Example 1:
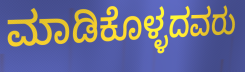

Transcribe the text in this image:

ಮಾಡಿಕೊಳ್ಳದವರು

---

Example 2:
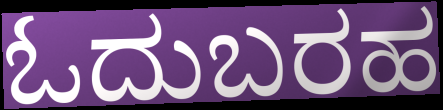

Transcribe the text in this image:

ಓದುಬರಹ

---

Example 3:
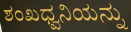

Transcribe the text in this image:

ಶಂಖಧ್ವನಿಯನ್ನು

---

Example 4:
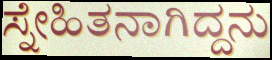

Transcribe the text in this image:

ಸ್ನೇಹಿತನಾಗಿದ್ದನು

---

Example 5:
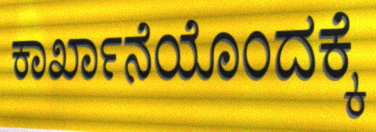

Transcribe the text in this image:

ಕಾರ್ಖಾನೆಯೊಂದಕ್ಕೆ